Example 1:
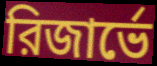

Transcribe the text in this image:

রিজার্ভে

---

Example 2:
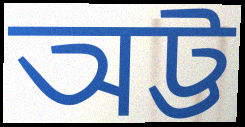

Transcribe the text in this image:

অট্ট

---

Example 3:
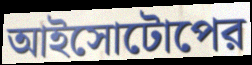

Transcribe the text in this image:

আইসোটোপের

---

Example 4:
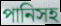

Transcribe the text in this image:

পানিসহ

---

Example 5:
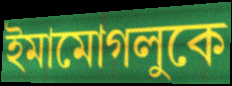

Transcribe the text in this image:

ইমামোগলুকে